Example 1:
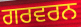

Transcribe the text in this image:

ਗਰਵਰਨ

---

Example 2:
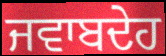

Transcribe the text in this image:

ਜਵਾਬਦੇਹ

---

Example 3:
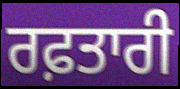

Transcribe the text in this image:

ਰਫ਼ਤਾਰੀ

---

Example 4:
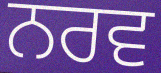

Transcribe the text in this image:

ਨਰਵ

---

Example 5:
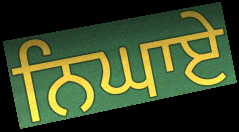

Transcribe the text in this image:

ਨਿਘਾਏ